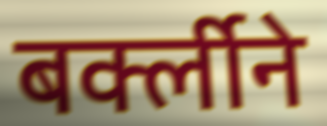
बर्क्लीने